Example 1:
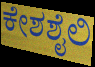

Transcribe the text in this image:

ಕೇಶಶೈಲಿ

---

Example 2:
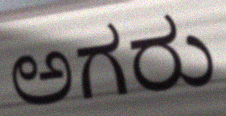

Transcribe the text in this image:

ಅಗರು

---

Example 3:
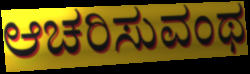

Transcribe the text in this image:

ಆಚರಿಸುವಂಥ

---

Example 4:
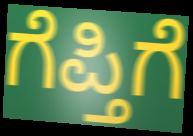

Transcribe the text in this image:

ಗೆಪ್ತಿಗೆ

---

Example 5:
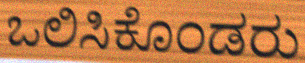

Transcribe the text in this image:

ಒಲಿಸಿಕೊಂಡರು